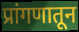
प्रांगणातून